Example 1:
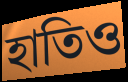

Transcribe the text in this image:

হাতিও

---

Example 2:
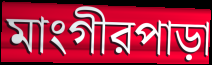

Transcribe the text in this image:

মাংগীরপাড়া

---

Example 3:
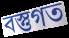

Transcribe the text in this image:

বস্তুগত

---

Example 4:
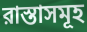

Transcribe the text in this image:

রাস্তাসমূহ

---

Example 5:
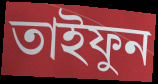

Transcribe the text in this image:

তাইফুন